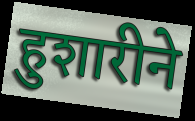
हुशारीने